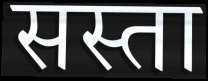
सस्ता